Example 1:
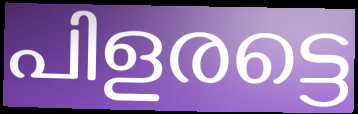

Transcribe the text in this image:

പിളരട്ടെ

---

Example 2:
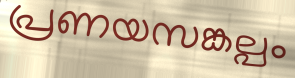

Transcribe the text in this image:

പ്രണയസങ്കല്പം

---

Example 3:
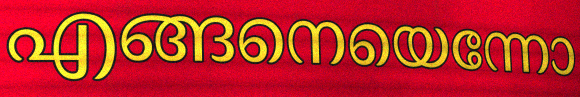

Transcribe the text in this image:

എങ്ങനെയെന്നോ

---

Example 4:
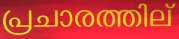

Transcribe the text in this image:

പ്രചാരത്തില്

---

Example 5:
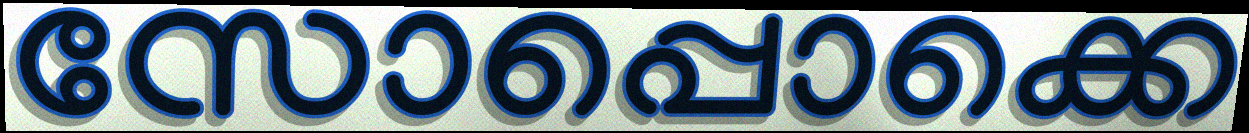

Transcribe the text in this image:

സോപ്പൊക്കെ